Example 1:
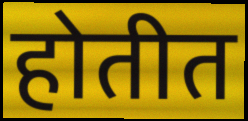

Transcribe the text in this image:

होतीत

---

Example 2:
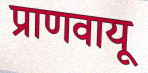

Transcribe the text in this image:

प्राणवायू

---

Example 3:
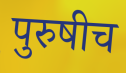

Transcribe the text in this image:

पुरुषीच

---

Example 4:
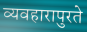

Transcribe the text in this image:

व्यवहारापुरते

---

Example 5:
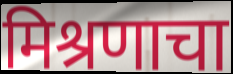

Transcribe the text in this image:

मिश्रणाचा